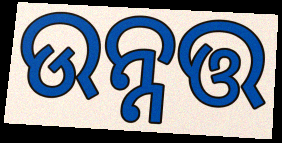
ଉନ୍ନତ୍ତ